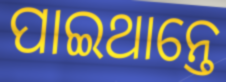
ପାଇଥାନ୍ତେ